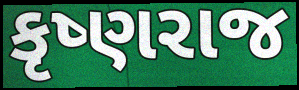
કૃષ્ણરાજ